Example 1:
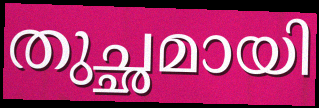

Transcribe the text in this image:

തുച്ഛമായി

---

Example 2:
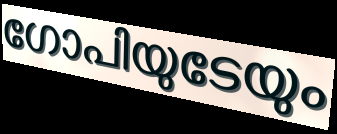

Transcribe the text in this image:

ഗോപിയുടേയും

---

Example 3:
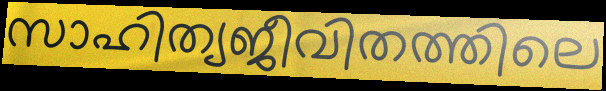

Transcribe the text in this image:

സാഹിത്യജീവിതത്തിലെ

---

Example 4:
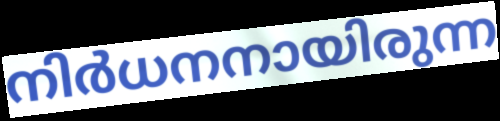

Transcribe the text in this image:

നിർധനനായിരുന്ന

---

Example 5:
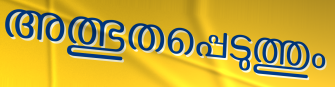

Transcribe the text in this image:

അത്ഭുതപ്പെടുത്തും